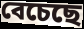
বেচেছে